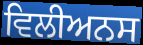
ਵਿਲੀਅਨਸ